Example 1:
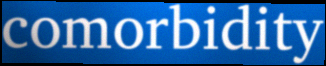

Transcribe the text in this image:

comorbidity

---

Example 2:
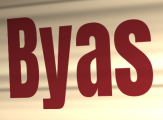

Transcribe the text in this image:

Byas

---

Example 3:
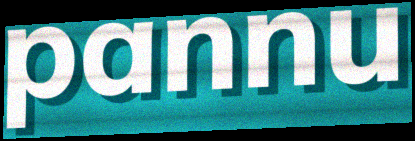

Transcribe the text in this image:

pannu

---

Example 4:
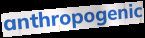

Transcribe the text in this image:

anthropogenic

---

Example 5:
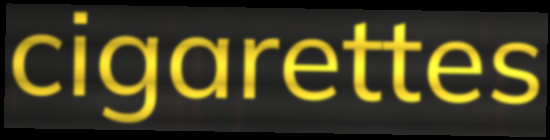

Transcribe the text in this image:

cigarettes